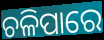
ଚଳିପାରେ